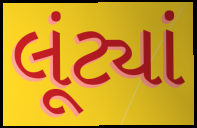
લૂંટ્યાં